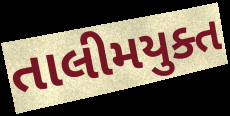
તાલીમયુક્ત